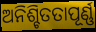
ଅନିଶ୍ଚିତତାପୂର୍ଣ୍ଣ